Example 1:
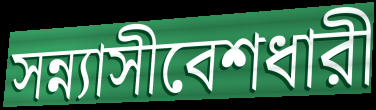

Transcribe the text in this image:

সন্ন্যাসীবেশধারী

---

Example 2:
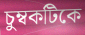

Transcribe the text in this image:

চুম্বকটিকে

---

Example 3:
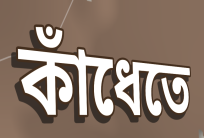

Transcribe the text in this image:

কাঁধেতে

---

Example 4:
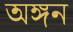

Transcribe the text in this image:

অঙ্গন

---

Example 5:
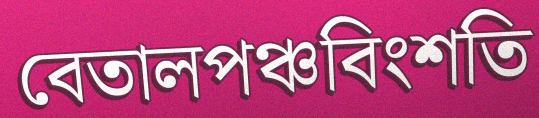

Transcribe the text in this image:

বেতালপঞ্চবিংশতি